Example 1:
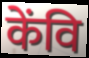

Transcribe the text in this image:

केंवि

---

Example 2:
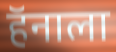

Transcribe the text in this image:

हॅनाला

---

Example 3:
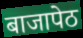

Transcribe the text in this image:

बाजापेठ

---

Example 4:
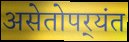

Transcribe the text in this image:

असेतोपर्यंत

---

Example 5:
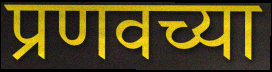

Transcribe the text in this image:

प्रणवच्या